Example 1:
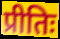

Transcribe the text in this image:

प्रीतिः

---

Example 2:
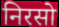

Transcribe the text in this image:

निरसो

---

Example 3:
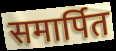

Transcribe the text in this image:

समार्पित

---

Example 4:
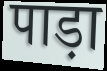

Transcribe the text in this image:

पाड़ा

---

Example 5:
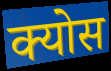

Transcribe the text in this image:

क्योस